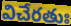
విచేరతుః